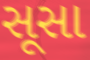
સૂસા